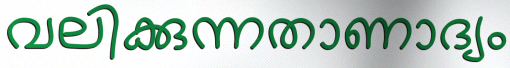
വലിക്കുന്നതാണാദ്യം